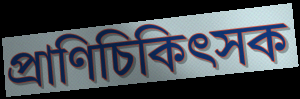
প্রাণিচিকিৎসক